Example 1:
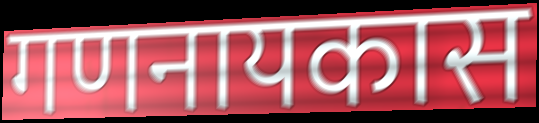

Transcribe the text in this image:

गणनायकास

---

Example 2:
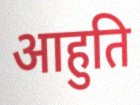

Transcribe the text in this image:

आहुति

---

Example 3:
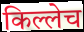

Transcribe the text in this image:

किल्लेच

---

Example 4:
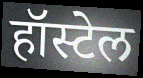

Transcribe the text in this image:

हॉस्टेल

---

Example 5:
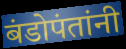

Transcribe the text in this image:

बंडोपंतांनी